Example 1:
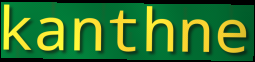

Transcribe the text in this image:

kanthne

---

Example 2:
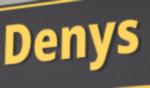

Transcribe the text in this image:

Denys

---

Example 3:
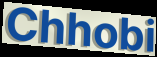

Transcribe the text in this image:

Chhobi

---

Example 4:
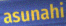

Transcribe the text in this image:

asunahi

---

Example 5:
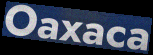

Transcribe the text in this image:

Oaxaca